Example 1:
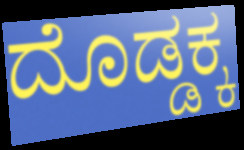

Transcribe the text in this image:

ದೊಡ್ಡಕ್ಕ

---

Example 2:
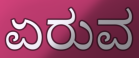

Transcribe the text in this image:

ಏರುವ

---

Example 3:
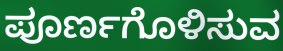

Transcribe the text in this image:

ಪೂರ್ಣಗೊಳಿಸುವ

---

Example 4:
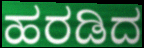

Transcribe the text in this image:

ಹರಡಿದ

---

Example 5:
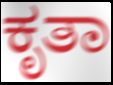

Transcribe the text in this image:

ಕೃತಾ